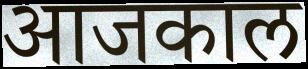
आजकाल